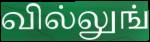
வில்லுங்